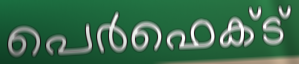
പെർഫെക്ട്